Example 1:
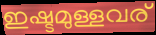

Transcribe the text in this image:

ഇഷ്ടമുള്ളവര്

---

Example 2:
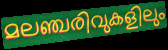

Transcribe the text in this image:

മലഞ്ചരിവുകളിലും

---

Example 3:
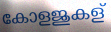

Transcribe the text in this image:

കോളജുകള്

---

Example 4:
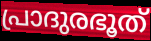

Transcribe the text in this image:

പ്രാദുരഭൂത്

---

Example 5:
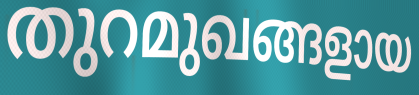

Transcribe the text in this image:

തുറമുഖങ്ങളായ